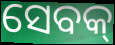
ସେବକ୍